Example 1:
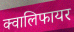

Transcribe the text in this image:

क्वालिफायर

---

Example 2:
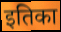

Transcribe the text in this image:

इतिका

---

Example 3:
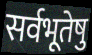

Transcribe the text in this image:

सर्वभूतेषु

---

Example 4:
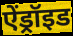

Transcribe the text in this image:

ऐंड्रॉइड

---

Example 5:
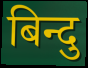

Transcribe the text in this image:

बिन्दु